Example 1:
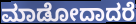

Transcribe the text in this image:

ಮಾಡೋದಾದರೆ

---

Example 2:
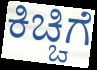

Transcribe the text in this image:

ಕಿಚ್ಚಿಗೆ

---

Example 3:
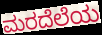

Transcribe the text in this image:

ಮರದೆಲೆಯ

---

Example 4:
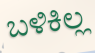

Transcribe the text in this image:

ಬಳಿಕಿಲ್ಲ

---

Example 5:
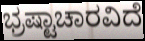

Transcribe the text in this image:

ಭ್ರಷ್ಟಾಚಾರವಿದೆ